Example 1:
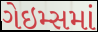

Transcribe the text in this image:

ગેઇમ્સમાં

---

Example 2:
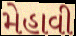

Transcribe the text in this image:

મેહાવી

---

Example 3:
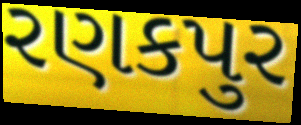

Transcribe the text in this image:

રણકપુર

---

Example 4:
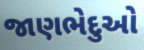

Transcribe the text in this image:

જાણભેદુઓ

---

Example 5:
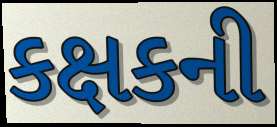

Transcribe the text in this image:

કક્ષકની